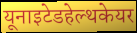
यूनाइटेडहेल्थकेयर